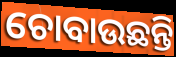
ଚୋବାଉଛନ୍ତି